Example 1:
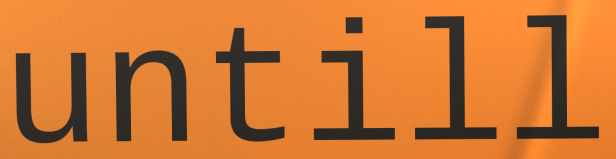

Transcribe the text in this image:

untill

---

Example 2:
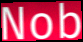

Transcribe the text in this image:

Nob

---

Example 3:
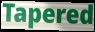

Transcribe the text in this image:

Tapered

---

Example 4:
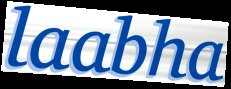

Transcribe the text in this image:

laabha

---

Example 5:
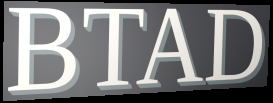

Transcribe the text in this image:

BTAD